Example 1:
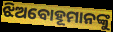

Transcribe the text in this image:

ଝିଅବୋହୂମାନଙ୍କୁ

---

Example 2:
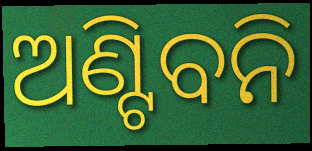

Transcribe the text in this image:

ଅଣ୍ଟିବନି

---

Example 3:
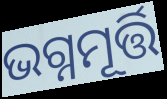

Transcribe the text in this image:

ଭଗ୍ନମୂର୍ତ୍ତି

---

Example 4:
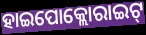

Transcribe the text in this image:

ହାଇପୋକ୍ଲୋରାଇଟ୍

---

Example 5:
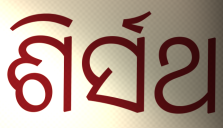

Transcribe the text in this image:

ଶିର୍ସଥ